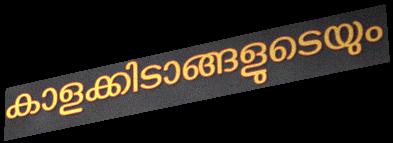
കാളക്കിടാങ്ങളുടെയും